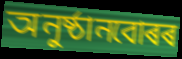
অনুষ্ঠানবোৰৰ